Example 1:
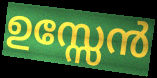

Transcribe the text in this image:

ഉസ്സേൻ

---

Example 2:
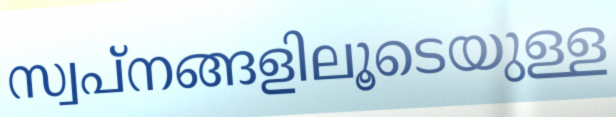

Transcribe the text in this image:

സ്വപ്നങ്ങളിലൂടെയുള്ള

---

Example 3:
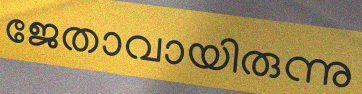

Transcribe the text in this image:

ജേതാവായിരുന്നു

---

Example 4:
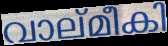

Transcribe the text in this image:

വാല്മീകി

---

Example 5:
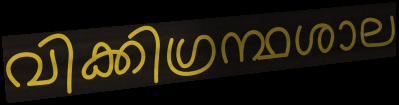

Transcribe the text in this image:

വിക്കിഗ്രന്ഥശാല